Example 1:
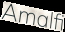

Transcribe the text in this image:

Amalfi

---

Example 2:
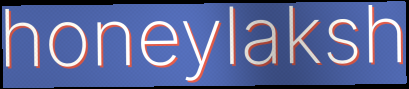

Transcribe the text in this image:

honeylaksh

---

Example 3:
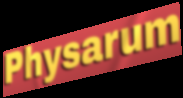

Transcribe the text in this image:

Physarum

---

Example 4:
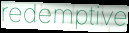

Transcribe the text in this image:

redemptive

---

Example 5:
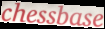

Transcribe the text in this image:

chessbase